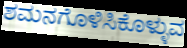
ಶಮನಗೊಳಿಸಿಕೊಳ್ಳುವ